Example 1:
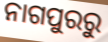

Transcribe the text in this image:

ନାଗପୁରରୁ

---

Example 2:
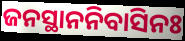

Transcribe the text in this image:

ଜନସ୍ଥାନନିବାସିନଃ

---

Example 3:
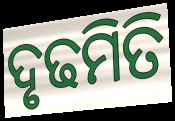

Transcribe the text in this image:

ଦୃଢମିତି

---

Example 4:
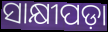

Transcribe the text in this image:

ସାକ୍ଷୀପଡ଼ା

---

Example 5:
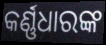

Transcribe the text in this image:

କର୍ଣ୍ଣଧାରଙ୍କ